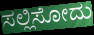
ಸಲ್ಲಿಸೋದು